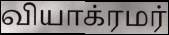
வியாக்ரமர்